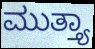
ಮುತ್ತ್ಯಾ